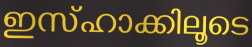
ഇസ്ഹാക്കിലൂടെ